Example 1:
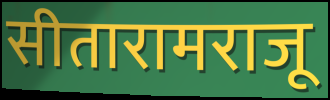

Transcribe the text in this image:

सीतारामराजू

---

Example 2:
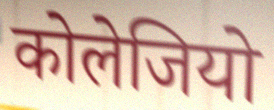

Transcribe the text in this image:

कोलेजियो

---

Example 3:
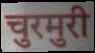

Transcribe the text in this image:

चुरमुरी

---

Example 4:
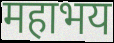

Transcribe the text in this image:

महाभय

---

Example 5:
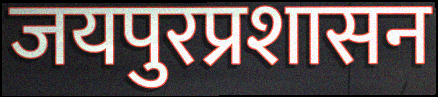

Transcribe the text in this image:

जयपुरप्रशासन